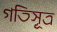
গতিসূত্র